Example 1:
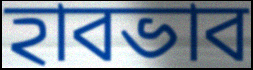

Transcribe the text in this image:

হাবভাব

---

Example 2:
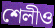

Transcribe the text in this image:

শেলীও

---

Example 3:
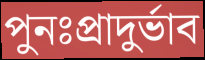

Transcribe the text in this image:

পুনঃপ্রাদুর্ভাব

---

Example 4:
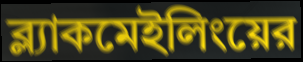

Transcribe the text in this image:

ব্ল্যাকমেইলিংয়ের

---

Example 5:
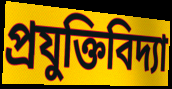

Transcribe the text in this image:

প্রযুক্তিবিদ্যা